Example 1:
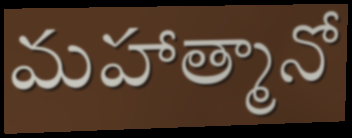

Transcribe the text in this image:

మహాత్మానో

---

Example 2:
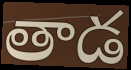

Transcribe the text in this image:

తాడ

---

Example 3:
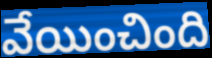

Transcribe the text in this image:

వేయించింది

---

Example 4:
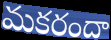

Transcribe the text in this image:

మకరందా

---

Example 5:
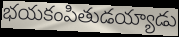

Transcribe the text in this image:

భయకంపితుడయ్యాడు